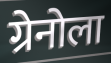
ग्रेनोला